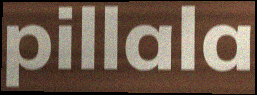
pillala